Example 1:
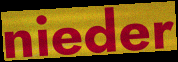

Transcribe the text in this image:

nieder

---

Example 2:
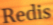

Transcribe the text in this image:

Redis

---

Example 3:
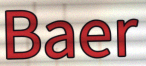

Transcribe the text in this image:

Baer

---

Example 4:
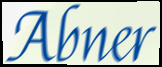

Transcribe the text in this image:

Abner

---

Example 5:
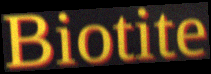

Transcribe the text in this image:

Biotite